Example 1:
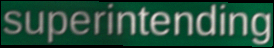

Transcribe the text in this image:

superintending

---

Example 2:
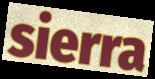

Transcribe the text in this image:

sierra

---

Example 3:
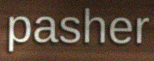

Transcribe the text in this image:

pasher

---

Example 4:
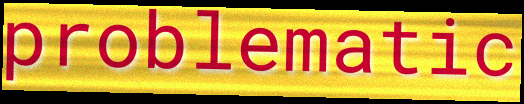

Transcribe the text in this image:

problematic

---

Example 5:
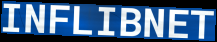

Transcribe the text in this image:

INFLIBNET